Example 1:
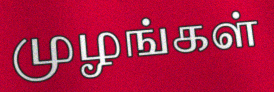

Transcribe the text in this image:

முழங்கள்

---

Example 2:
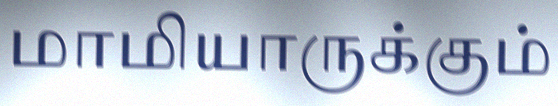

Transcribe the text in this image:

மாமியாருக்கும்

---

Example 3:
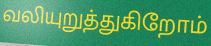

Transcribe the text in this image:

வலியுறுத்துகிறோம்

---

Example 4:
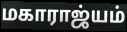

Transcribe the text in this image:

மகாராஜ்யம்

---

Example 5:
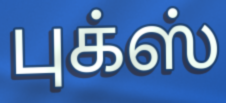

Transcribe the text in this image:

புக்ஸ்